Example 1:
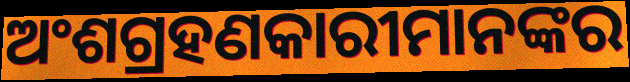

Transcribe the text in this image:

ଅଂଶଗ୍ରହଣକାରୀମାନଙ୍କର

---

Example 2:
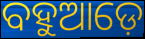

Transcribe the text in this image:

ବହୁଆଡ଼େ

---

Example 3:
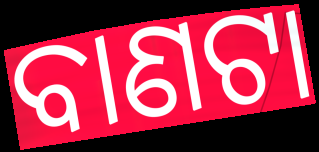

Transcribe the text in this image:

ବାଣଟା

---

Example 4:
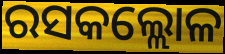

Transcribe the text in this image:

ରସକଲ୍ଲୋଳ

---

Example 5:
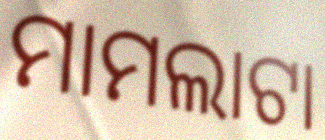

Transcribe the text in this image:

ମାମଲାଟା